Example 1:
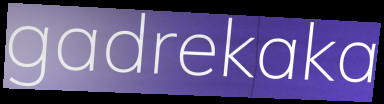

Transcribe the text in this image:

gadrekaka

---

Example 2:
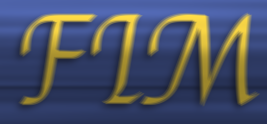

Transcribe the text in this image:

FIM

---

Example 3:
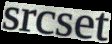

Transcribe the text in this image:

srcset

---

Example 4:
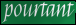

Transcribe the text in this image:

pourtant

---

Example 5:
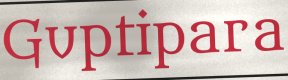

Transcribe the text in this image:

Guptipara